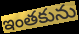
ఇంతకును